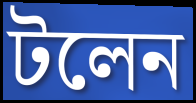
টলেন